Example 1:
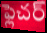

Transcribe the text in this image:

ఫ్లెచర్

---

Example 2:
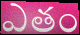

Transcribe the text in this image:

ఎతం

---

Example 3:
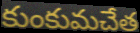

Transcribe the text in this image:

కుంకుమచేత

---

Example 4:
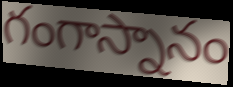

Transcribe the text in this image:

గంగాస్నానం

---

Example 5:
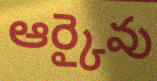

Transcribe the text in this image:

ఆర్కైవు